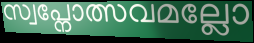
സ്വപ്നോത്സവമല്ലോ